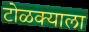
टोळक्याला